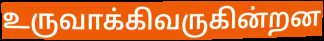
உருவாக்கிவருகின்றன